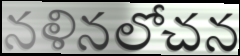
నళినలోచన